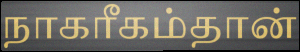
நாகரீகம்தான்